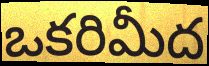
ఒకరిమీద